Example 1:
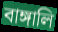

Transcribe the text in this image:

বাঙ্গালি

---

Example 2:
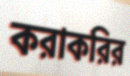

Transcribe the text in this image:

করাকরির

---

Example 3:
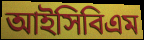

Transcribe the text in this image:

আইসিবিএম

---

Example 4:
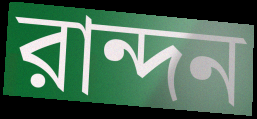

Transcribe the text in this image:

রান্দন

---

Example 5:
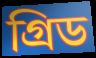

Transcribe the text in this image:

গ্রিড